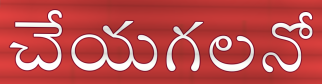
చేయగలనో